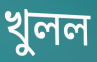
খুলল